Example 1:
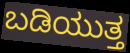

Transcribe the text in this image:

ಬಡಿಯುತ್ತ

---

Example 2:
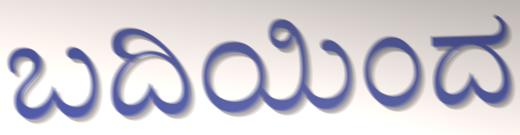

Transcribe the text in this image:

ಬದಿಯಿಂದ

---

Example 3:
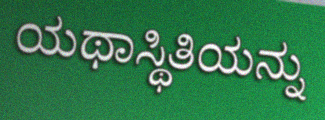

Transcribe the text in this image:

ಯಥಾಸ್ಥಿತಿಯನ್ನು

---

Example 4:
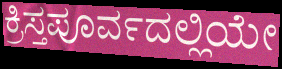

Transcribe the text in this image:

ಕ್ರಿಸ್ತಪೂರ್ವದಲ್ಲಿಯೇ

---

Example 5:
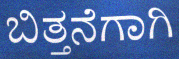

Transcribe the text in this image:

ಬಿತ್ತನೆಗಾಗಿ